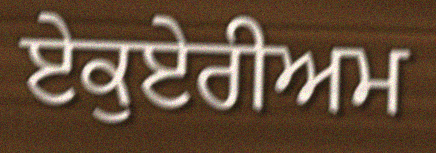
ਏਕੁਏਰੀਅਮ